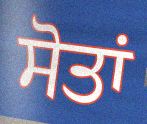
ਸੋਤਾਂ